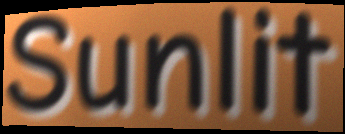
Sunlit